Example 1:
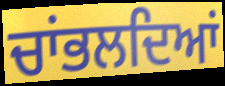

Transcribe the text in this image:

ਚਾਂਭਲਦਿਆਂ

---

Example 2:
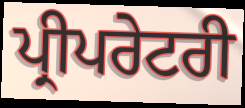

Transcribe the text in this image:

ਪ੍ਰੀਪਰੇਟਰੀ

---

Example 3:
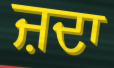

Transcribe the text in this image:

ਜ਼ਦਾ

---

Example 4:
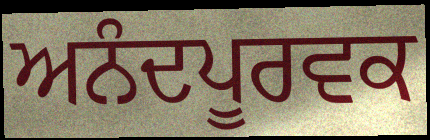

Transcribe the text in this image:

ਅਨੰਦਪੂਰਵਕ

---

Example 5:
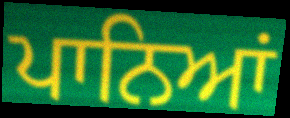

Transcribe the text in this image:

ਪਾਨਿਆਂ